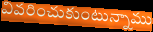
వివరించుకుంటున్నాము